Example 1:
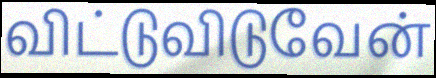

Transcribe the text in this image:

விட்டுவிடுவேன்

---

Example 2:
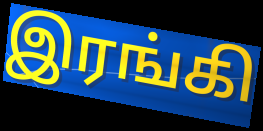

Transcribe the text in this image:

இரங்கி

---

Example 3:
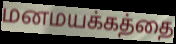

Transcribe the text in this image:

மனமயக்கத்தை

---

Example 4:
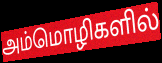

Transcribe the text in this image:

அம்மொழிகளில்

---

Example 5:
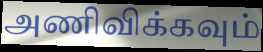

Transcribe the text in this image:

அணிவிக்கவும்